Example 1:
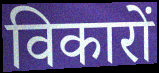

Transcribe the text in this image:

विकारों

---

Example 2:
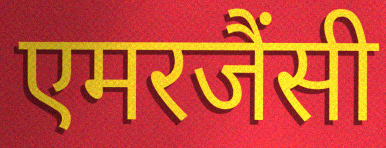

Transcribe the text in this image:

एमरजैंसी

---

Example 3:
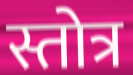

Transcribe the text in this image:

स्तोत्र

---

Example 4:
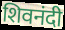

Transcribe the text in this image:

शिवनंदी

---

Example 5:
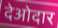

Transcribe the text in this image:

देओदार